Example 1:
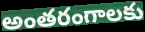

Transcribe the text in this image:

అంతరంగాలకు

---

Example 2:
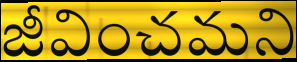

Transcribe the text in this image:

జీవించమని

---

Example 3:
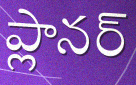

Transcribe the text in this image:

ప్లానర్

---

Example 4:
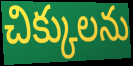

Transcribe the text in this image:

చిక్కులను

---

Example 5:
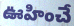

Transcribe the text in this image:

ఊహించే